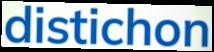
distichon